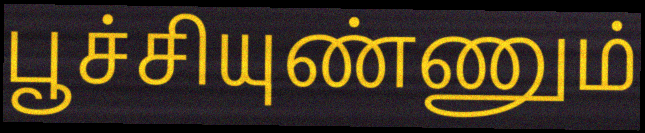
பூச்சியுண்ணும்